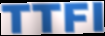
TTFI